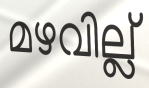
മഴവില്ല്